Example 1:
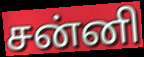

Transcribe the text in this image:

சன்னி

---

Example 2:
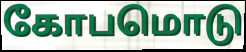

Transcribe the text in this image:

கோபமொடு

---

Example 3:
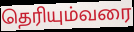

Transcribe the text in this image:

தெரியும்வரை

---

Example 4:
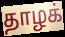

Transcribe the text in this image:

தாழக்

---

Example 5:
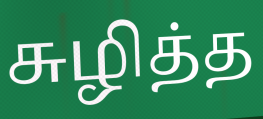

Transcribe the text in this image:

சுழித்த